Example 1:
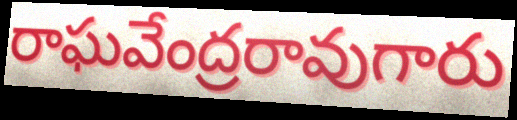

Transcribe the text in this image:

రాఘవేంద్రరావుగారు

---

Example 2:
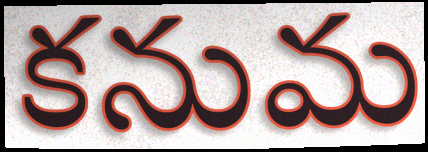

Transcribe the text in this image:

కనుమ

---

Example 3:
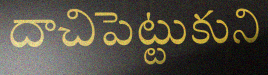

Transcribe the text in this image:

దాచిపెట్టుకుని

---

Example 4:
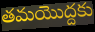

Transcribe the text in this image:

తమయొద్దకు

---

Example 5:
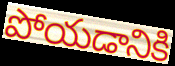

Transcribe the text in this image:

పోయడానికి